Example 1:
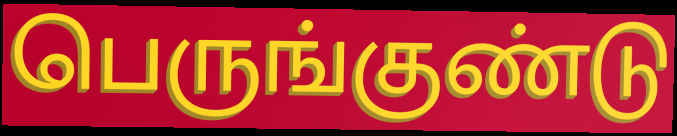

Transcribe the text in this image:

பெருங்குண்டு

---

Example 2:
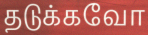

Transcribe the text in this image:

தடுக்கவோ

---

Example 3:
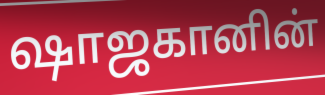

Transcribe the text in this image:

ஷாஜகானின்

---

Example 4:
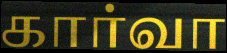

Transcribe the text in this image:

கார்வா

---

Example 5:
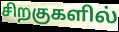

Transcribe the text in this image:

சிறகுகளில்